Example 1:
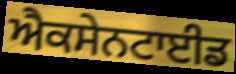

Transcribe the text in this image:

ਐਕਸੇਨਟਾਈਡ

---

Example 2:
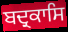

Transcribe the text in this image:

ਬਦ੍ਰਕਾਸਿ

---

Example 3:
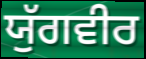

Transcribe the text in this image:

ਯੁੱਗਵੀਰ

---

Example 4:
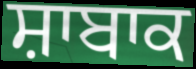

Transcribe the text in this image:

ਸ਼ਾਬਾਕ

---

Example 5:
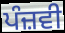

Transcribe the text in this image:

ਪੰਜ਼ਵੀ